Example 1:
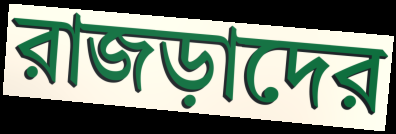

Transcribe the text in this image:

রাজড়াদের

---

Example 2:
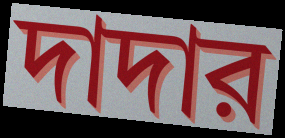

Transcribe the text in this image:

দাদার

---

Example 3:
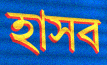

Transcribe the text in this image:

হাসব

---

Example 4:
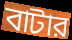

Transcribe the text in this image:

বাটার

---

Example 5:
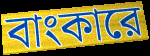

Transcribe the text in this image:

বাংকারে